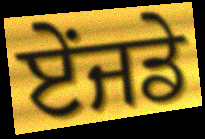
ਏਂਜਡੇ